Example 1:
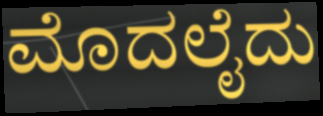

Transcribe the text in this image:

ಮೊದಲೈದು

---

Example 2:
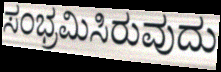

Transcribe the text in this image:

ಸಂಭ್ರಮಿಸಿರುವುದು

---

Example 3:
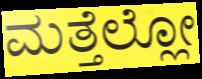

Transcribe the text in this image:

ಮತ್ತೆಲ್ಲೋ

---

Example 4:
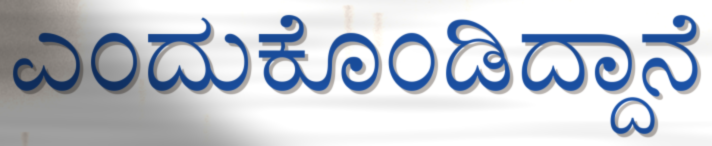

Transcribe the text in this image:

ಎಂದುಕೊಂಡಿದ್ದಾನೆ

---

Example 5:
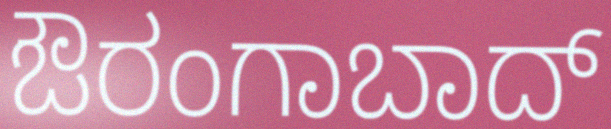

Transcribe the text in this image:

ಔರಂಗಾಬಾದ್